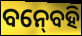
ବନ୍‍ବେହି